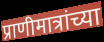
प्राणीमात्रांच्या